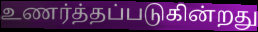
உணர்த்தப்படுகின்றது